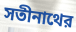
সতীনাথের